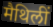
मैथिलीं